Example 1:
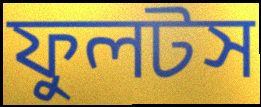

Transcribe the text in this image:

ফুলটস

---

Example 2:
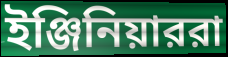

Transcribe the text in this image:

ইঞ্জিনিয়াররা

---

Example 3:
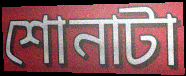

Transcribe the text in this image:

শোনাটা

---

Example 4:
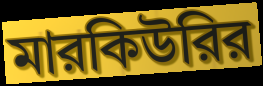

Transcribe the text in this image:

মারকিউরির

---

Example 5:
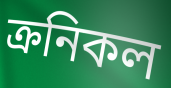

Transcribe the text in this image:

ক্রনিকল